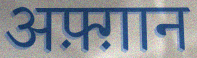
अफ़्ग़ान